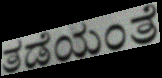
ತಡೆಯಂತೆ